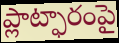
ప్లాట్ఫారంపై